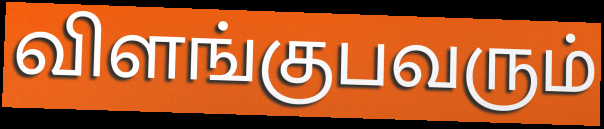
விளங்குபவரும்